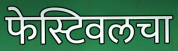
फेस्टिवलचा